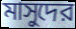
মাসুদের